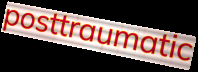
posttraumatic